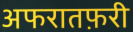
अफरातफ़री